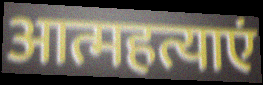
आत्महत्याएं